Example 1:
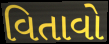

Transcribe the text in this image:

વિતાવો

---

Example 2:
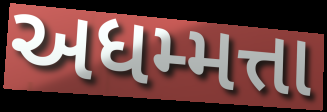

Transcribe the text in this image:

અધમ્મત્તા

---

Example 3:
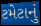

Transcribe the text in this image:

ટમેટાનું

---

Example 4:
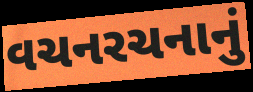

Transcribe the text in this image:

વચનરચનાનું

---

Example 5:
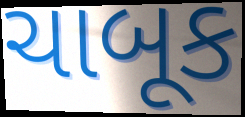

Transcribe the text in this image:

ચાબૂક